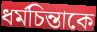
ধর্মচিন্তাকে